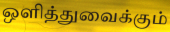
ஒளித்துவைக்கும்